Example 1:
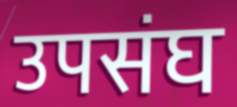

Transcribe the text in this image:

उपसंघ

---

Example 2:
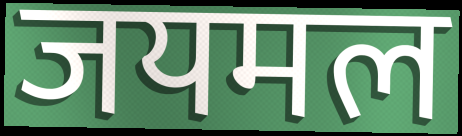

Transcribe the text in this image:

जयमल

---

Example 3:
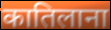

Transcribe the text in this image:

कातिलाना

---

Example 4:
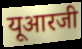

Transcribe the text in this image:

यूआरजी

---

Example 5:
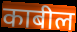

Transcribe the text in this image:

काबील